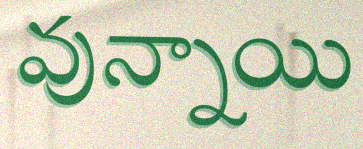
వున్నాయి